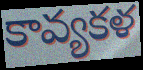
కావ్యకళ